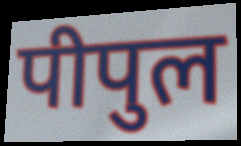
पीपुल